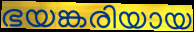
ഭയങ്കരിയായ